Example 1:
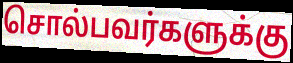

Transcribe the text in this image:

சொல்பவர்களுக்கு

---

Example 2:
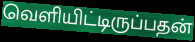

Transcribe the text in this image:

வெளியிட்டிருப்பதன்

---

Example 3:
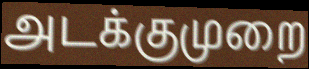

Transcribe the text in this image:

அடக்குமுறை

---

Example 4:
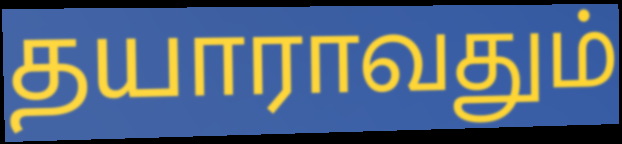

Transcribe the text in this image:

தயாராவதும்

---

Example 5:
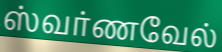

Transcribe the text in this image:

ஸ்வர்ணவேல்